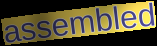
assembled